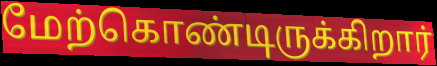
மேற்கொண்டிருக்கிறார்